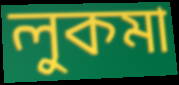
লুকমা